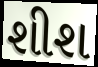
શીશ